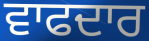
ਵਾਫਦਾਰ